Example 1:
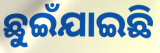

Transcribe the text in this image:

ଛୁଇଁଯାଇଛି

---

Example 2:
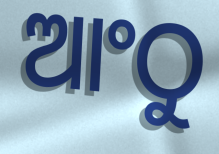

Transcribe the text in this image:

ଆଂଠୁ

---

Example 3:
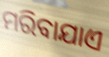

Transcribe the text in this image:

ମରିବାଯାଏ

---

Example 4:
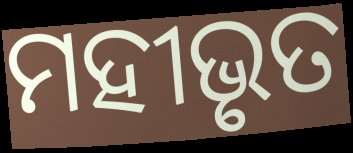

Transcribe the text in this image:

ମହୀଭୃତ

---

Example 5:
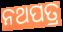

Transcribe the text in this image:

ନଥପତ୍ର